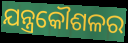
ଯନ୍ତ୍ରକୌଶଳର